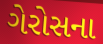
ગેરોસના